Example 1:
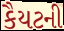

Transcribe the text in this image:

કૈયટની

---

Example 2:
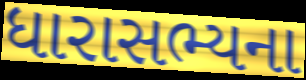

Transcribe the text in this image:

ધારાસભ્યના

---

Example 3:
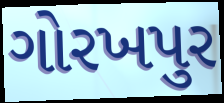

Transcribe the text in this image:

ગોરખપુર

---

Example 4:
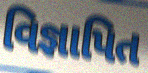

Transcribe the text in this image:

વિજ્ઞાપિત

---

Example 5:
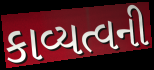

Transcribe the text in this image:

કાવ્યત્વની